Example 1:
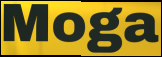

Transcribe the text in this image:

Moga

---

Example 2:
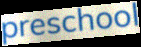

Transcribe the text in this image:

preschool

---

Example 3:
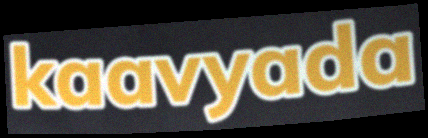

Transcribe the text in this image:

kaavyada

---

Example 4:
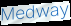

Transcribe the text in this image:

Medway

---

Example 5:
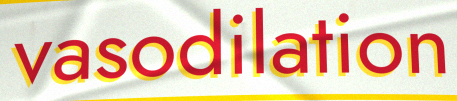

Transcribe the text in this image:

vasodilation